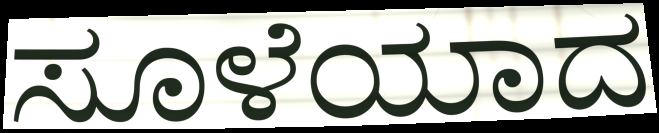
ಸೂಳೆಯಾದ